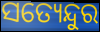
ସତ୍ୟେନ୍ଦୁର